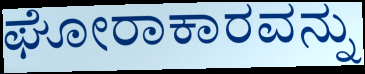
ಘೋರಾಕಾರವನ್ನು